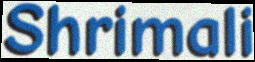
Shrimali